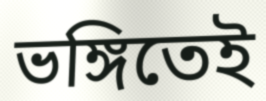
ভঙ্গিতেই